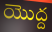
యొద్ద